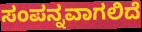
ಸಂಪನ್ನವಾಗಲಿದೆ